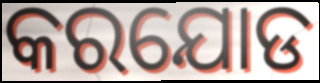
କରଯୋଡ